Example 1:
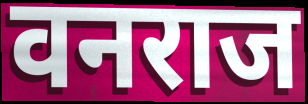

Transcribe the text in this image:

वनराज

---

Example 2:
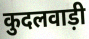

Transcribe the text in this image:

कुदलवाड़ी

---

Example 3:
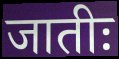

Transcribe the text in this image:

जातीः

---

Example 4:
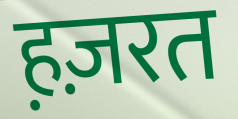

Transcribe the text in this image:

ह़ज़रत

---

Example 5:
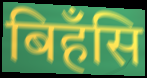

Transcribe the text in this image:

बिहँसि